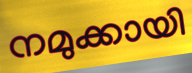
നമുക്കായി